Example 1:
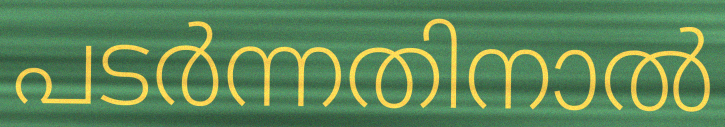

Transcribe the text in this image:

പടർന്നതിനാൽ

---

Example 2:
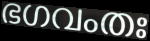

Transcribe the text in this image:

ഭഗവംതഃ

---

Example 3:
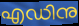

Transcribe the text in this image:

എഡിനു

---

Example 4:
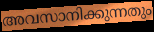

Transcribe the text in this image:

അവസാനിക്കുന്നതും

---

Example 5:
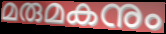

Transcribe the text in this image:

മരുമകനും